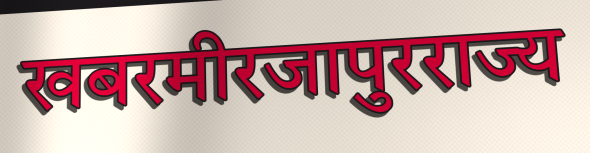
खबरमीरजापुरराज्य